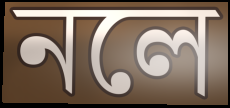
নলে